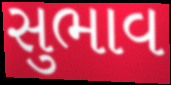
સુભાવ